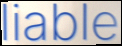
liable